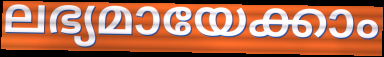
ലഭ്യമായേക്കാം